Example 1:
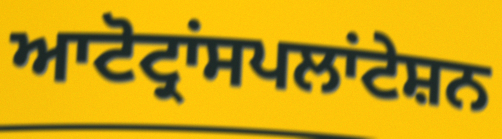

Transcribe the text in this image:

ਆਟੋਟ੍ਰਾਂਸਪਲਾਂਟੇਸ਼ਨ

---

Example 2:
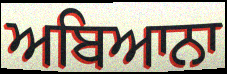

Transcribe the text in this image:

ਅਬਿਆਨਾ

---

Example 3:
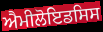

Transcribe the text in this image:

ਐਮੀਲੋਇਡਸਿਸ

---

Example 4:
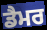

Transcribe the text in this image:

ਡੈਮਰ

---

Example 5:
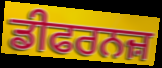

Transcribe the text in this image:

ਡੀਫਰਨਜ਼